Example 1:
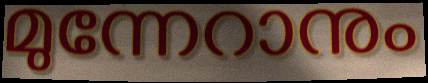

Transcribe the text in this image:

മുന്നേറാനും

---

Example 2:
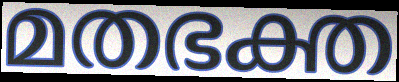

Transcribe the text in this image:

മതഭക്ത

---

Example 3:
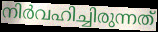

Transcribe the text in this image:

നിർവഹിച്ചിരുന്നത്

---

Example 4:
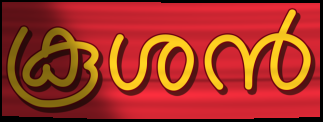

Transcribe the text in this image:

കൂശൻ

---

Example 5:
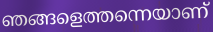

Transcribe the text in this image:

ഞങ്ങളെത്തന്നെയാണ്